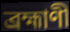
ব্রহ্মাণী